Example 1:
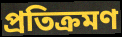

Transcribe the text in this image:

প্রতিক্রমণ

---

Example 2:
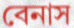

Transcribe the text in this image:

বেনাস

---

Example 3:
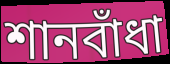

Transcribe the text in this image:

শানবাঁধা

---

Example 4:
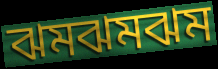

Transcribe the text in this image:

ঝমঝমঝম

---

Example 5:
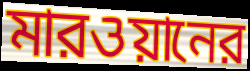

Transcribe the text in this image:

মারওয়ানের